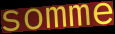
somme